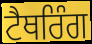
ਟੈਥਰਿੰਗ